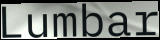
Lumbar